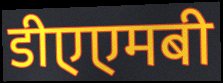
डीएएमबी